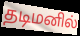
தடிமனில்